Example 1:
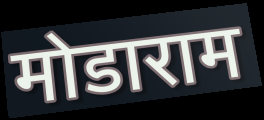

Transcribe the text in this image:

मोडाराम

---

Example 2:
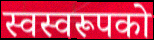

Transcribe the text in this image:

स्वस्वरूपको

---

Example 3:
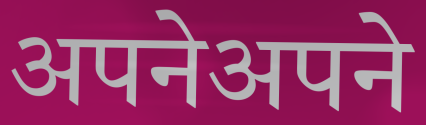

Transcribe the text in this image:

अपनेअपने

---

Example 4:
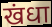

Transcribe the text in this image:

खंधा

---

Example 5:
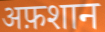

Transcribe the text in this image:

अफ़शान